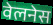
वेलनेस